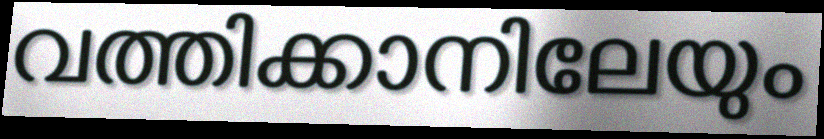
വത്തിക്കാനിലേയും